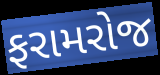
ફરામરોજ